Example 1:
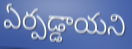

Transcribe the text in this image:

ఏర్పడ్డాయని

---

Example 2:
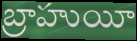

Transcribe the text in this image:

బ్రాహుయీ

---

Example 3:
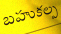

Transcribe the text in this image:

బహుకల్ప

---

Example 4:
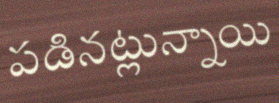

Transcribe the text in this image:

పడినట్లున్నాయి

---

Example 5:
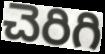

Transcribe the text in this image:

చెరిగి